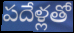
పదేళ్లతో